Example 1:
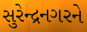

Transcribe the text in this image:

સુરેન્દ્રનગરને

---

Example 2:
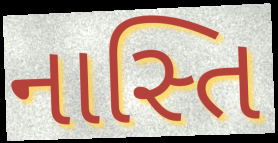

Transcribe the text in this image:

નાસ્તિ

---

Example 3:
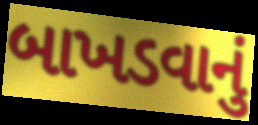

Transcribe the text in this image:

બાખડવાનું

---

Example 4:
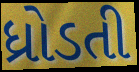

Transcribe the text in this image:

ધ્રોડતી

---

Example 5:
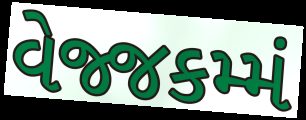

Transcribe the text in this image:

વેજ્જકમ્મં